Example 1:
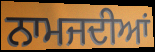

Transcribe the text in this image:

ਨਾਮਜਦੀਆਂ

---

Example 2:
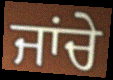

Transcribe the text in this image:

ਜਾਂਚੇ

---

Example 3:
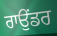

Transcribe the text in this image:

ਰਾਉਂਡਰ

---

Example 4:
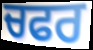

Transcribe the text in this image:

ਚਫਰ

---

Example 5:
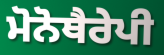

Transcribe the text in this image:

ਮੋਨੋਥੈਰੇਪੀ